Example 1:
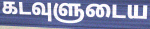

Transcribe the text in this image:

கடவுளுடைய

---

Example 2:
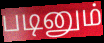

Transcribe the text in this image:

படினும்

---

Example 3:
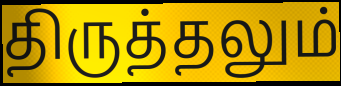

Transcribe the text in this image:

திருத்தலும்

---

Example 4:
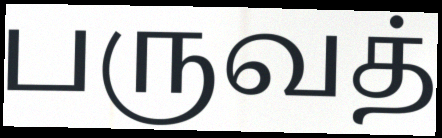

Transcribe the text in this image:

பருவத்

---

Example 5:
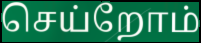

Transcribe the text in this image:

செய்றோம்